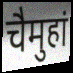
चैमुहां